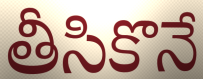
తీసికొనే